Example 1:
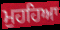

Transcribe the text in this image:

ਮੁਹਹਿਆ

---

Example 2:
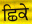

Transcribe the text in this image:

ਛਿਕੇ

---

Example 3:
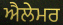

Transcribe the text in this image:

ਐਲੇਮਰ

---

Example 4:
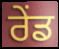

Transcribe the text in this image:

ਰੇਂਡ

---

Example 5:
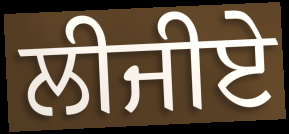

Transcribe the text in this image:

ਲੀਜੀਏ